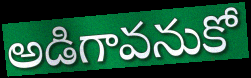
అడిగావనుకో